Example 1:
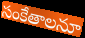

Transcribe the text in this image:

సంకేతాలనూ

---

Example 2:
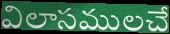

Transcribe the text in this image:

విలాసములచే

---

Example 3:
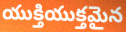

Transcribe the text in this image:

యుక్తియుక్తమైన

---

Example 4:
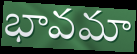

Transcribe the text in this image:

భావమా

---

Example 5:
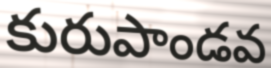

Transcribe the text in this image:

కురుపాండవ